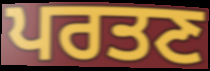
ਪਰਤਣ